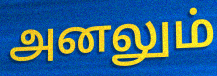
அனலும்